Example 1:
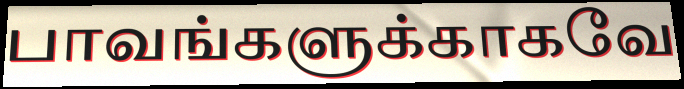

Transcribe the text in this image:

பாவங்களுக்காகவே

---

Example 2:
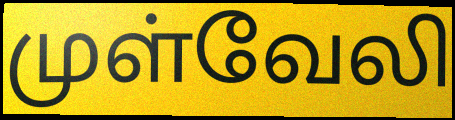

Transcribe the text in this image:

முள்வேலி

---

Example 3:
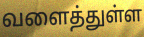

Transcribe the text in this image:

வளைத்துள்ள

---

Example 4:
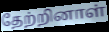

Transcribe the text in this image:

தேற்றினாள்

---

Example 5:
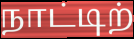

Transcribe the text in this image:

நாட்டிற்